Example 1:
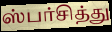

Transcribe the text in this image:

ஸ்பர்சித்து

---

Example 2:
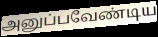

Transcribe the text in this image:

அனுப்பவேண்டிய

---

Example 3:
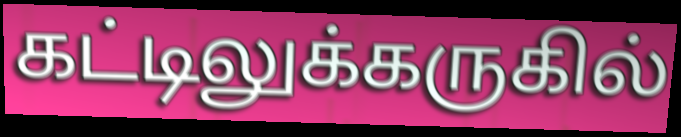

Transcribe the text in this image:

கட்டிலுக்கருகில்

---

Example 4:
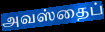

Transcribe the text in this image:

அவஸ்தைப்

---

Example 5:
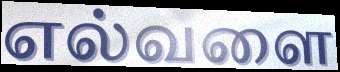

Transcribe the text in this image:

எல்வளை